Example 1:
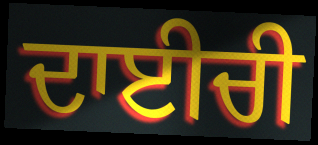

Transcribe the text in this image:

ਦਾਈਚੀ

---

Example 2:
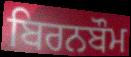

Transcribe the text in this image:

ਬਿਰਨਬੌਮ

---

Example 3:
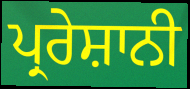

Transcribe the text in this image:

ਪ੍ਰਰੇਸ਼ਾਨੀ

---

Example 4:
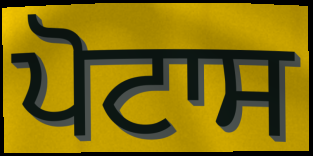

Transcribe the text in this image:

ਪੋਟਾਸ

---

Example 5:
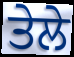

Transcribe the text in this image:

ਤੇਲੇ